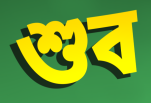
শুব